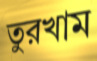
তুরখাম